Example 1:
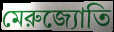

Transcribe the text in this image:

মেরুজ্যোতি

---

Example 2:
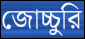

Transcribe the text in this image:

জোচ্চুরি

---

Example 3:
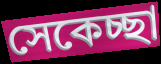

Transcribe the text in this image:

সেকেচ্ছা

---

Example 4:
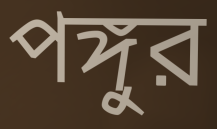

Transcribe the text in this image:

পঙ্গুর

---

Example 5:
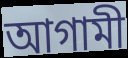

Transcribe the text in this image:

আগামী